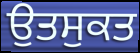
ਉਤਸੁਕਤ